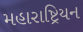
મહારાષ્ટ્રિયન